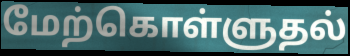
மேற்கொள்ளுதல்